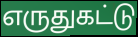
எருதுகட்டு